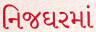
નિજઘરમાં